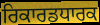
ਰਿਕਾਰਡਧਾਰਕ